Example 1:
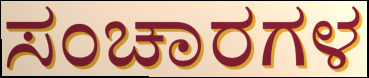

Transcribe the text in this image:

ಸಂಚಾರಗಳ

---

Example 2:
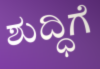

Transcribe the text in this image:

ಶುದ್ಧಿಗೆ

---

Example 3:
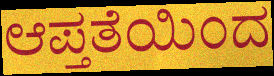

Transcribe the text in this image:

ಆಪ್ತತೆಯಿಂದ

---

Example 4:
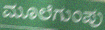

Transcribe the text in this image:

ಮೂಲೆಗುಂಪು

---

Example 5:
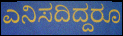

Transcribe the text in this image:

ಎನಿಸದಿದ್ದರೂ